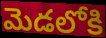
మెడలోకి